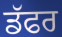
ਡੱਫਰ